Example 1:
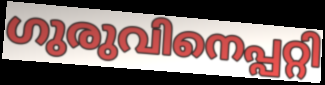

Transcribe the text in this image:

ഗുരുവിനെപ്പറ്റി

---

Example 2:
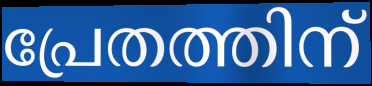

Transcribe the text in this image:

പ്രേതത്തിന്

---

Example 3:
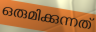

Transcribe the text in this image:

ഒരുമിക്കുന്നത്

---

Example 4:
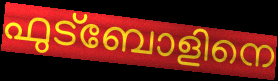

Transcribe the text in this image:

ഫുട്ബോളിനെ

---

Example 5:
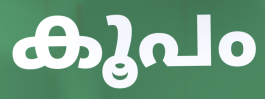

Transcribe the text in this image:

കൂപം